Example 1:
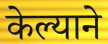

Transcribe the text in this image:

केल्‍याने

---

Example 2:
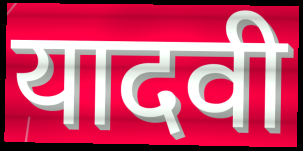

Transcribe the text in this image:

यादवी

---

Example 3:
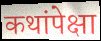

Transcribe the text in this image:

कथांपेक्षा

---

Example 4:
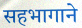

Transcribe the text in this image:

सहभागाने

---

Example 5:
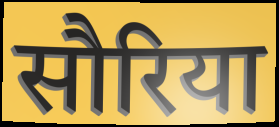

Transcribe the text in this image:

सौरिया